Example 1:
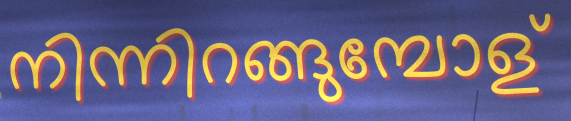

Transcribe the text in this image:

നിന്നിറങ്ങുമ്പോള്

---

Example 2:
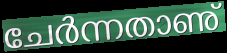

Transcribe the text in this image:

ചേർന്നതാണു്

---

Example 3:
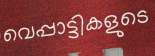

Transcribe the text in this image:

വെപ്പാട്ടികളുടെ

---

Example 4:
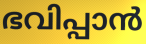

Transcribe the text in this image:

ഭവിപ്പാൻ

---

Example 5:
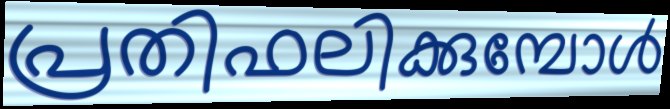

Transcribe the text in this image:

പ്രതിഫലിക്കുമ്പോൾ